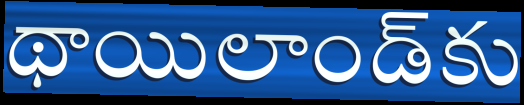
థాయిలాండ్‌కు